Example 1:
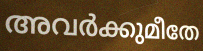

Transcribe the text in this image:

അവർക്കുമീതേ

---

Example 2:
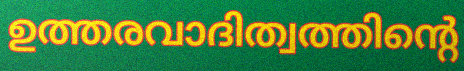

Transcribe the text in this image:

ഉത്തരവാദിത്വത്തിന്റെ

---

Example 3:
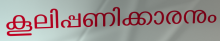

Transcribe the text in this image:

കൂലിപ്പണിക്കാരനും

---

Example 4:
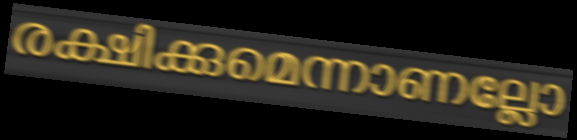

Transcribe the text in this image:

രക്ഷിക്കുമെന്നാണല്ലോ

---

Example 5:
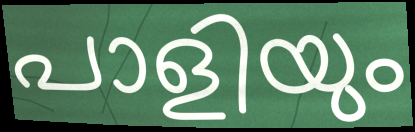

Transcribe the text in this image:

പാളിയും